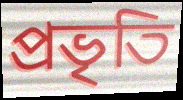
প্ৰভৃতি